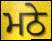
ਮਠੇ